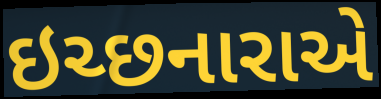
ઇચ્છનારાએ